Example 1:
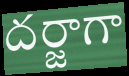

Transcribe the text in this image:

దర్జాగా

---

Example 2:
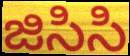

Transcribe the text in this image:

జిసిసి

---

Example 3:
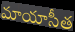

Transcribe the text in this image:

మాయాసీత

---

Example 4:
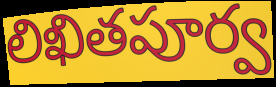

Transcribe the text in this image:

లిఖితపూర్వ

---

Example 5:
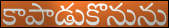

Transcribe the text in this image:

కాపాడుకొనును